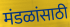
मंडळांसाठी